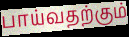
பாய்வதற்கும்